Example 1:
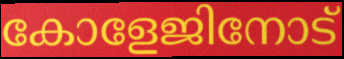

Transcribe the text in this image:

കോളേജിനോട്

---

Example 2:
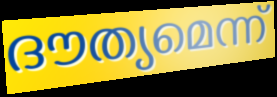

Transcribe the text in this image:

ദൗത്യമെന്ന്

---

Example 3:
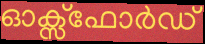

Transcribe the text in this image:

ഓക്സ്ഫോർഡ്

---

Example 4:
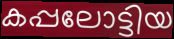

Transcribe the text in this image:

കപ്പലോട്ടിയ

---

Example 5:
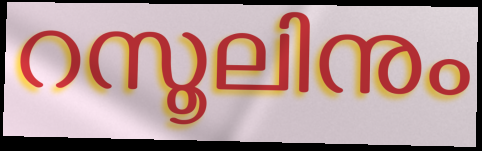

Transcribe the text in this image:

റസൂലിനും